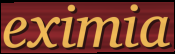
eximia